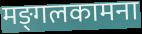
मङ्गलकामना